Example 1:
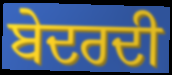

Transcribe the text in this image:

ਬੇਦਰਦੀ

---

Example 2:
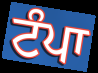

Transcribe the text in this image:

ਟੰਪਾ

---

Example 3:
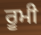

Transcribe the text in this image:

ਰੂਮੀ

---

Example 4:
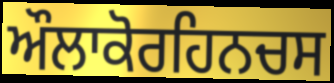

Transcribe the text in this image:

ਔਲਾਕੋਰਹਿਨਚਸ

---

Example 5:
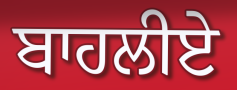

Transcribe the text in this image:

ਬਾਹਲੀਏ